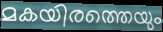
മകയിരത്തെയും